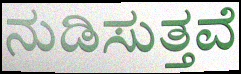
ನುಡಿಸುತ್ತವೆ